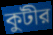
কুটীর